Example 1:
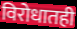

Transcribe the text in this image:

विरोधातही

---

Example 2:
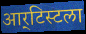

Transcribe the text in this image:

आर्टिस्टला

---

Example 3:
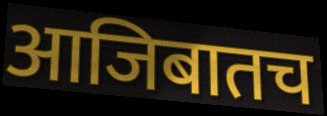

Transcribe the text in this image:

आजिबातच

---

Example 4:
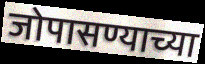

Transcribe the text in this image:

जोपासण्याच्या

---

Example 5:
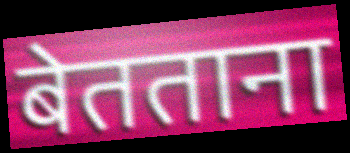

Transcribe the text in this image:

बेतताना